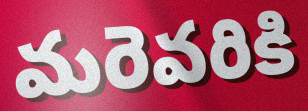
మరెవరికి